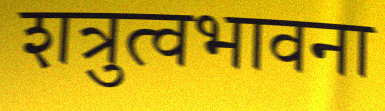
शत्रुत्वभावना